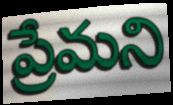
ప్రేమని